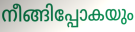
നീങ്ങിപ്പോകയും